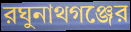
রঘুনাথগঞ্জের